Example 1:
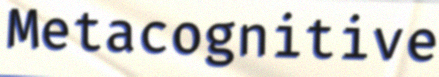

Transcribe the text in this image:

Metacognitive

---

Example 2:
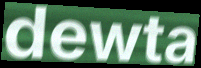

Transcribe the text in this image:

dewta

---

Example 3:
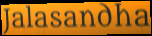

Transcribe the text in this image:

Jalasandha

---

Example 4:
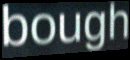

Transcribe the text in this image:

bough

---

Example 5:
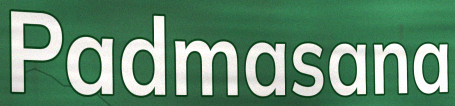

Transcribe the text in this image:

Padmasana